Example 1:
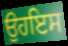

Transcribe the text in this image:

ਉਹਇਸ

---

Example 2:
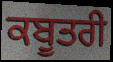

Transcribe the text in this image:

ਕਬੂਤਰੀ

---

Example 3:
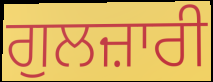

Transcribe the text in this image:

ਗੁਲਜ਼ਾਰੀ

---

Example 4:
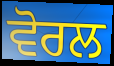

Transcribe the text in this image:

ਵੋਰਲ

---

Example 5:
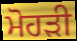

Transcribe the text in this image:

ਮੋਹੜੀ